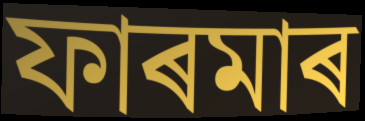
ফাৰমাৰ